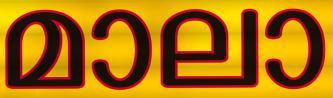
മാലാ